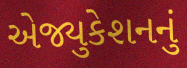
એજ્યુકેશનનું